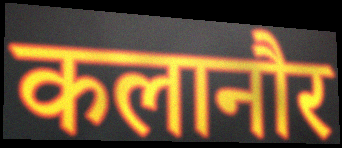
कलानौर